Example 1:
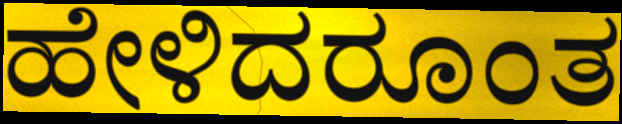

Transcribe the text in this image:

ಹೇಳಿದರೂಂತ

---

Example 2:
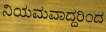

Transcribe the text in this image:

ನಿಯಮವಾದ್ದರಿಂದ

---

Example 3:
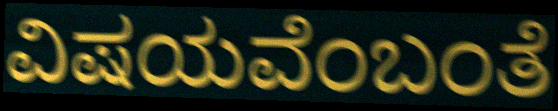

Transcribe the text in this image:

ವಿಷಯವೆಂಬಂತೆ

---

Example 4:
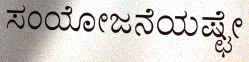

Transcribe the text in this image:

ಸಂಯೋಜನೆಯಷ್ಟೇ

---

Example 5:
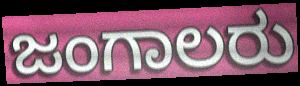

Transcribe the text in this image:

ಜಂಗಾಲರು